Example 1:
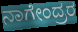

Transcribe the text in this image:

ನಾಗೇಂದ್ರರ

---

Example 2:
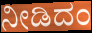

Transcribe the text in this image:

ನೀಡಿದಂ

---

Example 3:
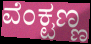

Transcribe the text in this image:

ವೆಂಕ್ಟಣ್ಣ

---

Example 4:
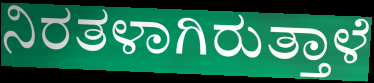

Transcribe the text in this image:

ನಿರತಳಾಗಿರುತ್ತಾಳೆ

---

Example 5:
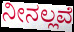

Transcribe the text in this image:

ನೀನಲ್ಲವೆ